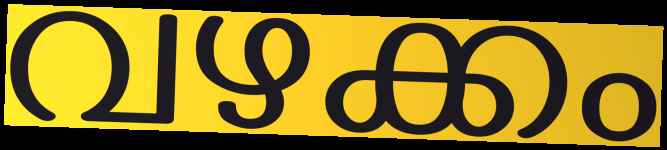
വഴക്കം